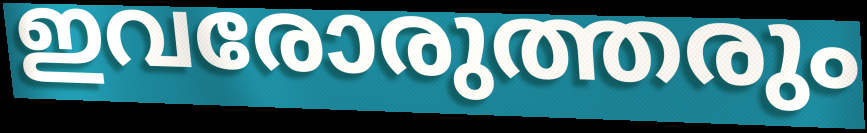
ഇവരോരുത്തരും